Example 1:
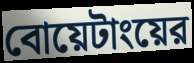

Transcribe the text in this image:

বোয়েটাংয়ের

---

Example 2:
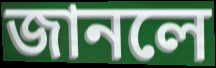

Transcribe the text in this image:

জানলে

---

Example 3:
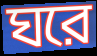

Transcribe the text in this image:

ঘরে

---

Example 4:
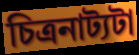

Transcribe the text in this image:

চিত্রনাট্যটা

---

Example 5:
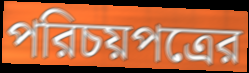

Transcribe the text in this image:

পরিচয়পত্রের